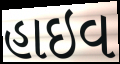
હાઇવ